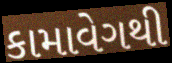
કામાવેગથી